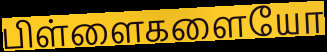
பிள்ளைகளையோ